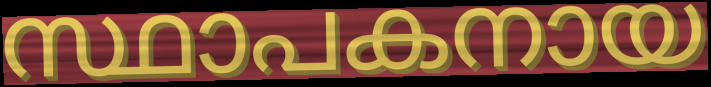
സ്ഥാപകനായ